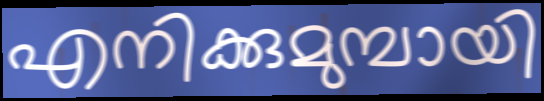
എനിക്കുമുമ്പായി